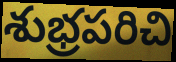
శుభ్రపరిచి